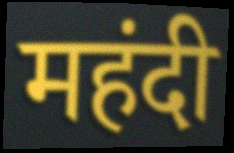
महंदी